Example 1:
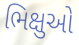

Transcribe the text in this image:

ભિક્ષુઓ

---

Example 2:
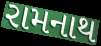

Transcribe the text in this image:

રામનાથ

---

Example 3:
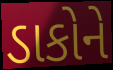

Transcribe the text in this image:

ડાકોને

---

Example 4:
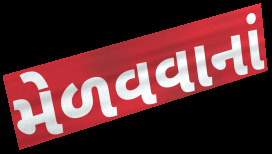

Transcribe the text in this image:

મેળવવાનાં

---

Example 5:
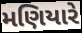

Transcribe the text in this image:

મણિયારે